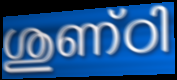
ശുണ്‌ഠി